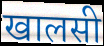
खालसी